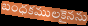
బంధకములకైనను